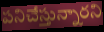
పనిచేస్తున్నారని